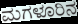
ಮಗಳೂರಿನ